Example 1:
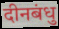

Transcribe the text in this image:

दीनबंधु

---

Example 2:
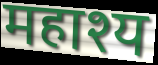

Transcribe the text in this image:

महाश्य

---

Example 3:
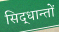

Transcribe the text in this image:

सिद्धान्तों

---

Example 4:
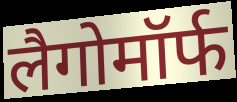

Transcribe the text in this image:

लैगोमॉर्फ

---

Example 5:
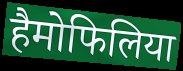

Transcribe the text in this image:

हैमोफिलिया